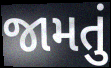
જામતું